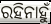
ରହିନାହୁଁ